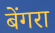
बेंगरा